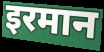
इरमान